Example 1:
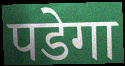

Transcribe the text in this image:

पडेगा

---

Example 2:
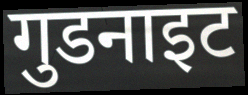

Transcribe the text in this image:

गुडनाइट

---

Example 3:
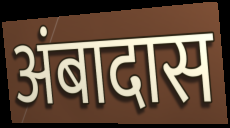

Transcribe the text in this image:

अंबादास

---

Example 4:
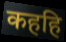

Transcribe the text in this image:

कहहि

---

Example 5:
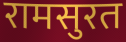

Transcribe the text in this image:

रामसुरत